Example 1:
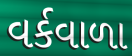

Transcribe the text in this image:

વર્કવાળા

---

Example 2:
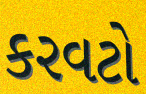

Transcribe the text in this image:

કરવટો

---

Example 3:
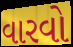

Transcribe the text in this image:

વારવો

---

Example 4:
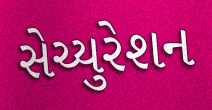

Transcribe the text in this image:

સેચ્યુરેશન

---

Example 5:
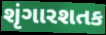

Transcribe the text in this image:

શૃંગારશતક